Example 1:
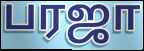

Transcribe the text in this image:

பரஜா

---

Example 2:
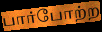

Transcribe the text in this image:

பார்போற்ற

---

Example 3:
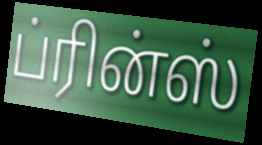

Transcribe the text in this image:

ப்ரின்ஸ்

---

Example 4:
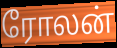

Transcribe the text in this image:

ரோலன்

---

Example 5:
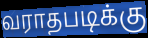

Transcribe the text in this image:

வராதபடிக்கு